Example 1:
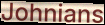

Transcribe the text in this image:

Johnians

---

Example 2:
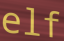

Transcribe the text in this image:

elf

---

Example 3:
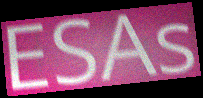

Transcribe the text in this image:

ESAs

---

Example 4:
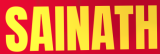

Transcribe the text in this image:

SAINATH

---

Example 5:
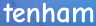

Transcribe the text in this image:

tenham